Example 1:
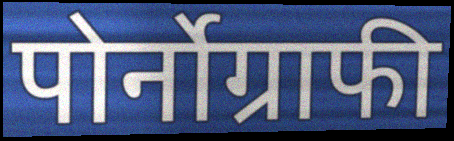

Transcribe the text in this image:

पोर्नोग्राफी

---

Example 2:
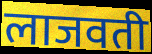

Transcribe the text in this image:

लाजवती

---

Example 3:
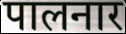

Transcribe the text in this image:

पालनार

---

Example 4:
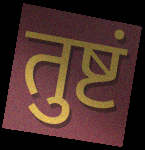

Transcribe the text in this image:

तुष्टं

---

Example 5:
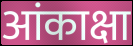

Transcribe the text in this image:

आंकाक्षा